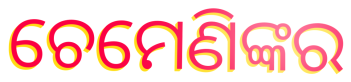
ଚେମେଣିଙ୍କର